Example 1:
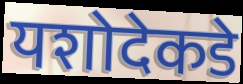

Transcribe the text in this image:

यशोदेकडे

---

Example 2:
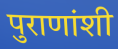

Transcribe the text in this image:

पुराणांशी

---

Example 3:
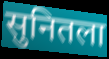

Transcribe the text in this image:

सुनितला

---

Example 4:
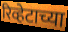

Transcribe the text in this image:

रिव्हेटाच्या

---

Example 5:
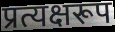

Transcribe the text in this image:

प्रत्यक्षरूप